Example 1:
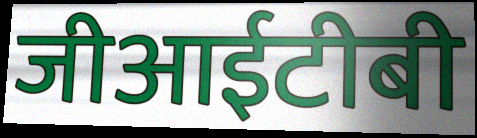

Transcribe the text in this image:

जीआईटीबी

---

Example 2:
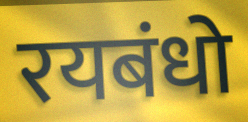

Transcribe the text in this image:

रयबंधो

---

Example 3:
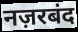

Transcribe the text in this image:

नज़रबंद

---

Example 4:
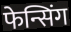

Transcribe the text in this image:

फेन्सिंग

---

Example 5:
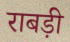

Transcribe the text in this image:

राबड़ी